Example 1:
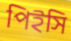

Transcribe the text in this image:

পিইসি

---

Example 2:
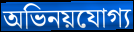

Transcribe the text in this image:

অভিনয়যোগ্য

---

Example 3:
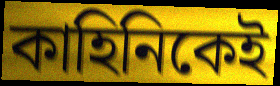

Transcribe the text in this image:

কাহিনিকেই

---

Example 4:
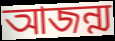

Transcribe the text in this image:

আজন্ম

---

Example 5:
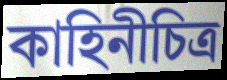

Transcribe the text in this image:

কাহিনীচিত্র